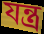
যন্ত্র